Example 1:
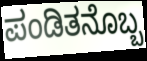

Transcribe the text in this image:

ಪಂಡಿತನೊಬ್ಬ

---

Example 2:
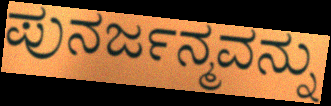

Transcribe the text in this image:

ಪುನರ್ಜನ್ಮವನ್ನು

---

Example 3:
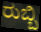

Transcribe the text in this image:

ರುಬ್ಬಿ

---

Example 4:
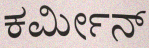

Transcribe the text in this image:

ಕರ್ಮೀನ್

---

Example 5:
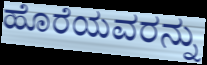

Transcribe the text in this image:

ಹೊರೆಯವರನ್ನು